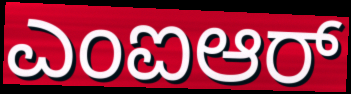
ಎಂಐಆರ್